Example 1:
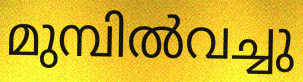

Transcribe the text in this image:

മുമ്പിൽവച്ചു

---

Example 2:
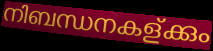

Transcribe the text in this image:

നിബന്ധനകള്ക്കും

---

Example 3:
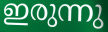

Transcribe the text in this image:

ഇരുന്നു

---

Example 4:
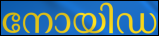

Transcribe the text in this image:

നോയിഡ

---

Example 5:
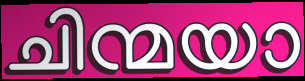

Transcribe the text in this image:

ചിന്മയാ